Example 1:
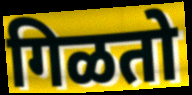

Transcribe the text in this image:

गिळतो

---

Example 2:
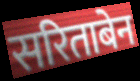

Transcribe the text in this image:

सरिताबेन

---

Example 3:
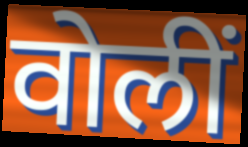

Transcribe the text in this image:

वोलीं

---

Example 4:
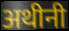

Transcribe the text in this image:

अथीनी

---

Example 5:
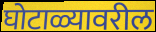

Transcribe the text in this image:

घोटाळ्यावरील